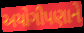
અયોગીપણાને